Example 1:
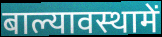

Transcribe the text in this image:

बाल्यावस्थामें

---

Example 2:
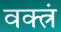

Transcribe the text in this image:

वक्त्रं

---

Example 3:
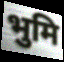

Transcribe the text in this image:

भुमि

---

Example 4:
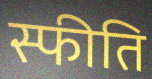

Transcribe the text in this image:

स्‍फीति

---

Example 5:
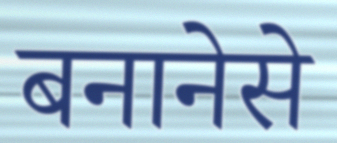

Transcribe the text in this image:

बनानेसे